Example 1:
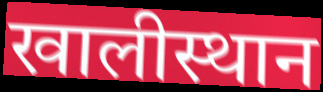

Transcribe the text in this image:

खालीस्थान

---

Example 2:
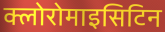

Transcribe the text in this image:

क्लोरोमाइसिटिन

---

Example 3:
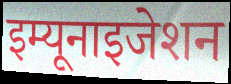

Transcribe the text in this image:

इम्यूनाइजेशन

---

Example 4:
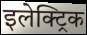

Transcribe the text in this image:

इलेक्ट्रिक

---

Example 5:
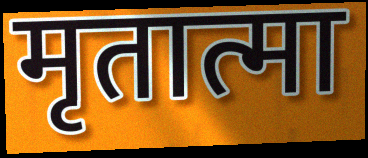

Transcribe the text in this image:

मृतात्मा